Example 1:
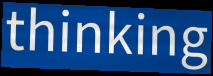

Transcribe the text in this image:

thinking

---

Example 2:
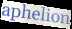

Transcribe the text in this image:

aphelion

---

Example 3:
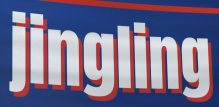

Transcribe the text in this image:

jingling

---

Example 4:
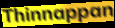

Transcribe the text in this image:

Thinnappan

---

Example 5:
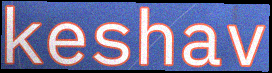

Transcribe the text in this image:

keshav